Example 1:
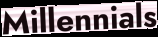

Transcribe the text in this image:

Millennials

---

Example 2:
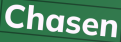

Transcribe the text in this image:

Chasen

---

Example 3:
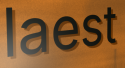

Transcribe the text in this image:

laest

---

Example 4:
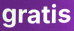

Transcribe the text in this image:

gratis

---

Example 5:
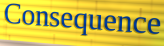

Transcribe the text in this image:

Consequence